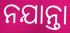
ନଯାନ୍ତା